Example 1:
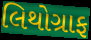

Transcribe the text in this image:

લિથોગ્રાફ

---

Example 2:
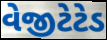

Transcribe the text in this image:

વેજીટેટેડ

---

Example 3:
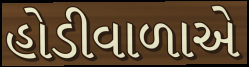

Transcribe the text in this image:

હોડીવાળાએ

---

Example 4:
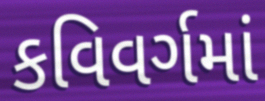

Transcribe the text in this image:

કવિવર્ગમાં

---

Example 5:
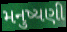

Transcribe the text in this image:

મનુષ્યણી